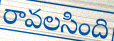
రావలసింది